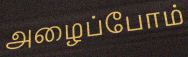
அழைப்போம்